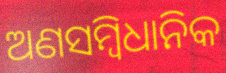
ଅଣସମ୍ବିଧାନିକ